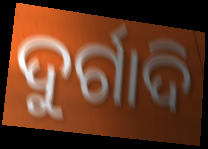
ଦୁର୍ଗାଦି